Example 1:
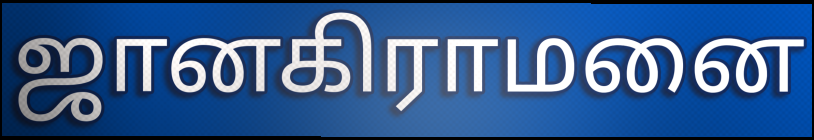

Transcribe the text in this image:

ஜானகிராமனை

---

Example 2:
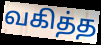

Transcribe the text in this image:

வகித்த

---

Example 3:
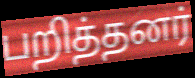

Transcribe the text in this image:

பறித்தனர்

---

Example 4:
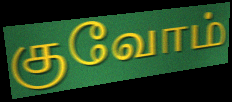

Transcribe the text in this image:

குவோம்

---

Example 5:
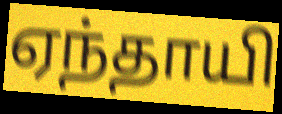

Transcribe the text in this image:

ஏந்தாயி